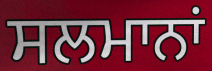
ਸਲਮਾਨਾਂ